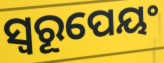
ସ୍ୱରୂପେୟଂ